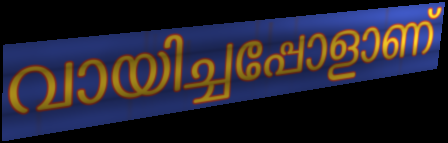
വായിച്ചപ്പോളാണ്